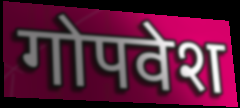
गोपवेश